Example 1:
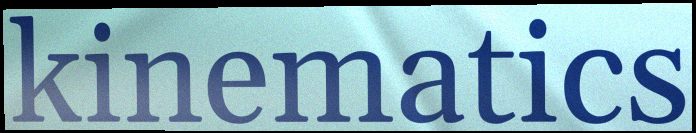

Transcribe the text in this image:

kinematics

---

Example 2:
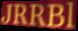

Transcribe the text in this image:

JRRBl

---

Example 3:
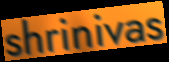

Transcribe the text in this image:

shrinivas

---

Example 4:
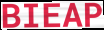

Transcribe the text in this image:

BIEAP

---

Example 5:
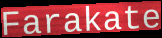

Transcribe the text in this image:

Farakate